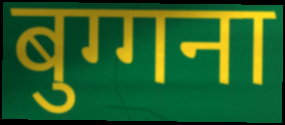
बुग्गना